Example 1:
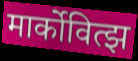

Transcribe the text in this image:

मार्कोवित्झ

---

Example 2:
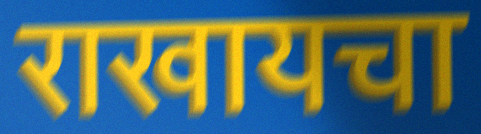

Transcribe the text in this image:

राखायचा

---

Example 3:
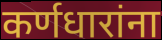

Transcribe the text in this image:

कर्णधारांना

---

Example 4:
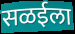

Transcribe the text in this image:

सळईला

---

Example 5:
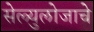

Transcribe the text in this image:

सेल्युलोजाचे